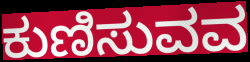
ಕುಣಿಸುವವ